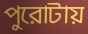
পুরোটায়